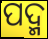
ପଦ୍ମ